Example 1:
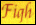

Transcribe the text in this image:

Fiqh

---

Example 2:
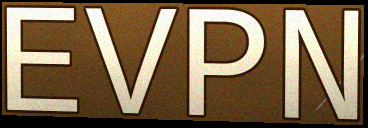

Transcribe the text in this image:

EVPN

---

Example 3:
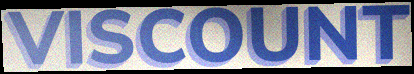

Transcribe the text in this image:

VISCOUNT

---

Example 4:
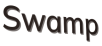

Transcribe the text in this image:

Swamp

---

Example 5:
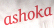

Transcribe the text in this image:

ashoka